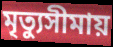
মৃত্যুসীমায়